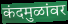
कंदमुळांवर